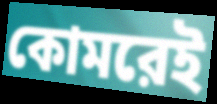
কোমরেই